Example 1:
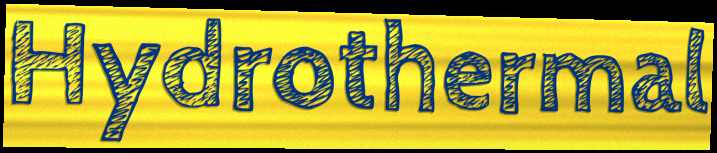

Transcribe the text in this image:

Hydrothermal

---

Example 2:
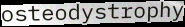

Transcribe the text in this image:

osteodystrophy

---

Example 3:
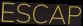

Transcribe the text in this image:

ESCAP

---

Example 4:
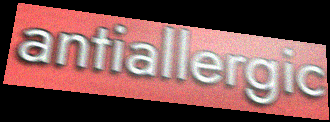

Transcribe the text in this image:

antiallergic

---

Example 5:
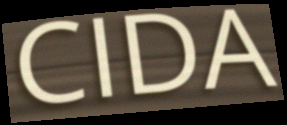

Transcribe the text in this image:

CIDA